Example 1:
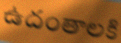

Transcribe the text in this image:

ఉదంతాలకి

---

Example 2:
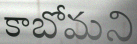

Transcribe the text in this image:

కాబోమని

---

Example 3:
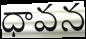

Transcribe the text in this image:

ధావన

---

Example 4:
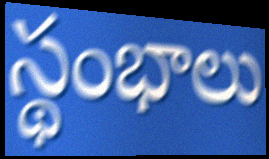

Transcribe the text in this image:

స్థంభాలు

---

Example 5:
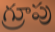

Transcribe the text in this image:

గ్రూపు